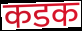
कडक